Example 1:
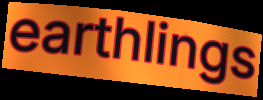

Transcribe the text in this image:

earthlings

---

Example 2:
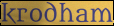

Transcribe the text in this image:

krodham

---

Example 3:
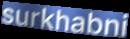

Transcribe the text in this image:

surkhabni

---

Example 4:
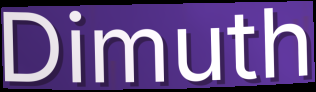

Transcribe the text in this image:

Dimuth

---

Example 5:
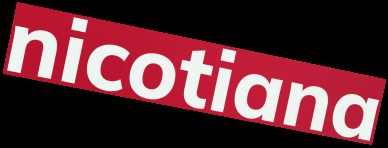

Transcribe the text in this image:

nicotiana